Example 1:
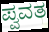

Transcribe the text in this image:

ಪ್ವವತ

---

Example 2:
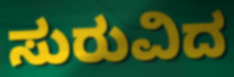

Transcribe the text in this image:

ಸುರುವಿದ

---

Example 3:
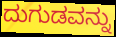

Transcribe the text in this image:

ದುಗುಡವನ್ನು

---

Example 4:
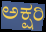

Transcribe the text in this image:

ಅಕ್ಷರಿ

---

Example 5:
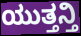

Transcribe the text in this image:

ಯುತ್ತನ್ತಿ